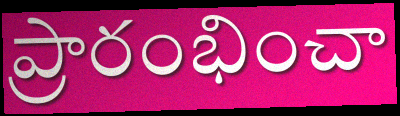
ప్రారంభించా